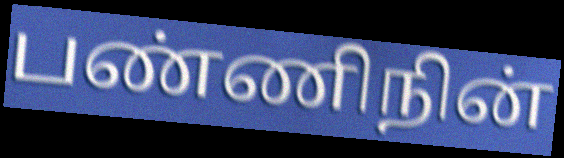
பண்ணிநின்